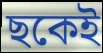
ছকেই